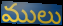
ములు